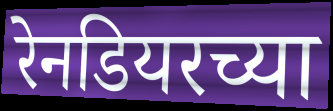
रेनडियरच्या